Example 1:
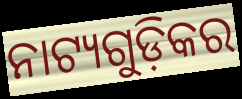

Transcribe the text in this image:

ନାଟ୍ୟଗୁଡ଼ିକର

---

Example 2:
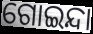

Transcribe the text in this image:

ଗୋଇନ୍ଦା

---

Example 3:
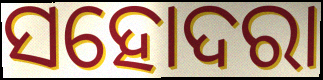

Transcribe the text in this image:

ସହୋଦରା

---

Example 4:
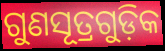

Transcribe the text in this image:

ଗୁଣସୂତ୍ରଗୁଡ଼ିକ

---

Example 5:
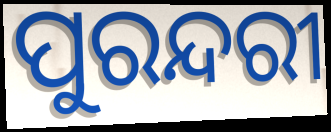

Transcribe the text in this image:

ପୁରନ୍ଦରୀ